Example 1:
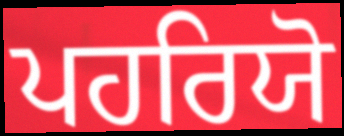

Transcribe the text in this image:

ਪਹਰਿਯੋ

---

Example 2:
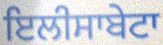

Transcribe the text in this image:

ਇਲੀਸਾਬੇਟਾ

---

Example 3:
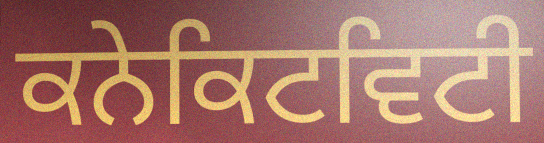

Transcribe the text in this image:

ਕਨੇਕਿਟਵਿਟੀ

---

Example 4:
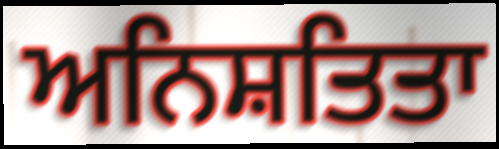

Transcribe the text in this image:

ਅਨਿਸ਼ਤਿਤਾ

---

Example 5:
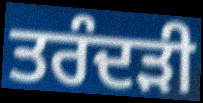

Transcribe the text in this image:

ਤਰੰਦੜੀ